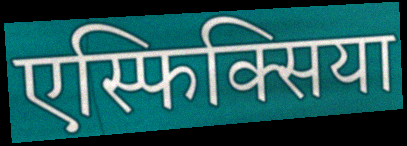
एस्फिक्सिया